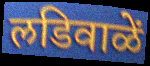
लडिवाळें